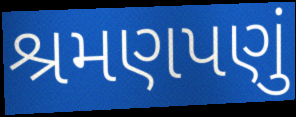
શ્રમણપણું